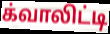
க்வாலிட்டி